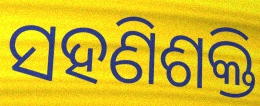
ସହଣିଶକ୍ତି